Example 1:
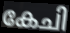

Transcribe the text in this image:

കേചി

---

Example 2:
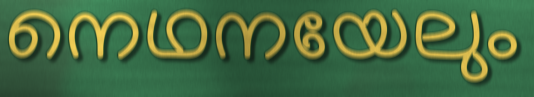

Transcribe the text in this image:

നെഥനയേലും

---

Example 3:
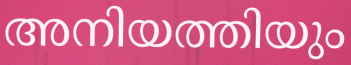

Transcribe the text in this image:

അനിയത്തിയും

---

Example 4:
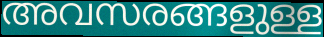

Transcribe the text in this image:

അവസരങ്ങളുള്ള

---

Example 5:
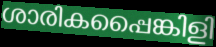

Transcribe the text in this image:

ശാരികപ്പൈങ്കിളി